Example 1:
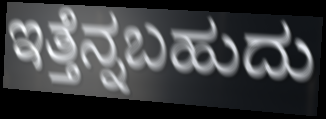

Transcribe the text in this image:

ಇತ್ತೆನ್ನಬಹುದು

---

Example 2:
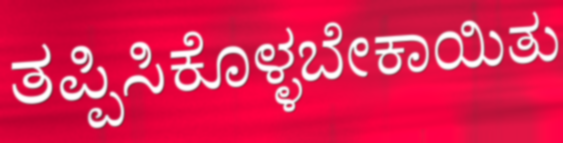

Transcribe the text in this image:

ತಪ್ಪಿಸಿಕೊಳ್ಳಬೇಕಾಯಿತು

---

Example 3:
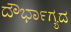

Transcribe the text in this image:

ದೌರ್ಭಾಗ್ಯದ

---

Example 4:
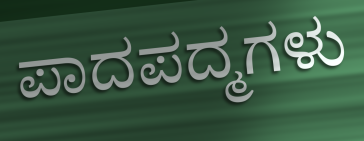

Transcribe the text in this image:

ಪಾದಪದ್ಮಗಳು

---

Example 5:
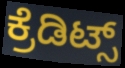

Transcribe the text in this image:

ಕ್ರೆಡಿಟ್ಸ್